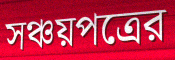
সঞ্চয়পত্রের